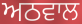
ਅਠਵਾਲ